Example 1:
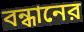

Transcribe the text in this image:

বন্ধানের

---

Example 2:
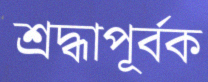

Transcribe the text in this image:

শ্রদ্ধাপূর্বক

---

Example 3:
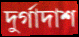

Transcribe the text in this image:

দুর্গাদাশ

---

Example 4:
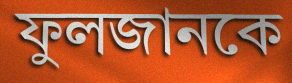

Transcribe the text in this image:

ফুলজানকে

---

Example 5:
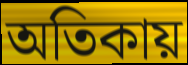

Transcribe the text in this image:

অতিকায়